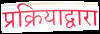
प्रक्रियाद्वारा